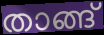
താങ്ങ്